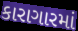
કારાગારમાં